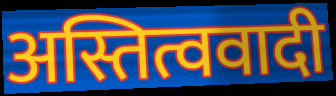
अस्तित्ववादी